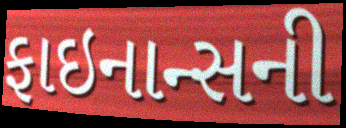
ફાઇનાન્સની